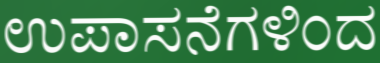
ಉಪಾಸನೆಗಳಿಂದ